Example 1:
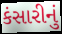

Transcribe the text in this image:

કંસારીનું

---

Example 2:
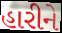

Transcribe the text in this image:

હારીને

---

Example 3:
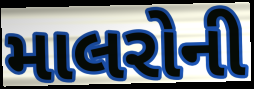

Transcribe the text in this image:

માલરોની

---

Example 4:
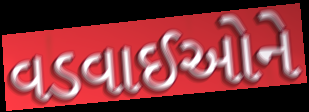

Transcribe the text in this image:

વડવાઈઓને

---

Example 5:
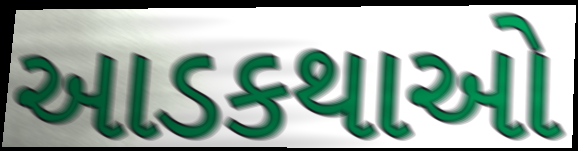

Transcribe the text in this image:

આડકથાઓ